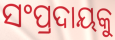
ସଂପ୍ରଦାୟକୁ